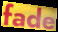
fade